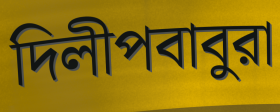
দিলীপবাবুরা